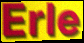
Erle